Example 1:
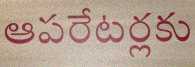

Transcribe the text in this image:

ఆపరేటర్లకు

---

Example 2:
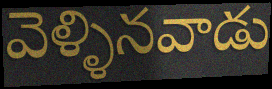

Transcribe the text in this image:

వెళ్ళినవాడు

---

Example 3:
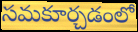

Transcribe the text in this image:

సమకూర్చడంలో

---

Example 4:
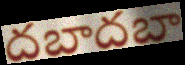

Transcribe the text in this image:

దబాదబా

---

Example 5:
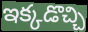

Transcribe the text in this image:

ఇక్కడొచ్చి